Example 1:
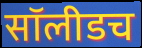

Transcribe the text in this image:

सॉलीडच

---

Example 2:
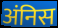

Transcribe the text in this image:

अंनिस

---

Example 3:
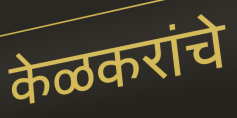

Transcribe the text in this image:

केळकरांचे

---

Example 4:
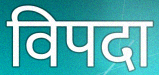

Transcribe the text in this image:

विपदा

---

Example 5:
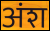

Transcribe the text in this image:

अंश